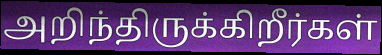
அறிந்திருக்கிறீர்கள்